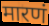
मारणं